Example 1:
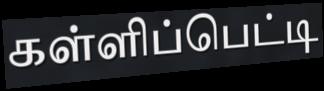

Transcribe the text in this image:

கள்ளிப்பெட்டி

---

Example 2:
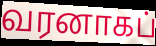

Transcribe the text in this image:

வரனாகப்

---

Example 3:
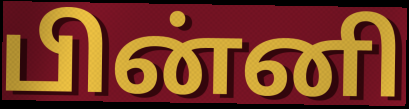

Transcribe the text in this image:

பின்னி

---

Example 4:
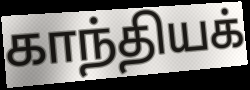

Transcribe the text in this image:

காந்தியக்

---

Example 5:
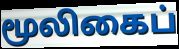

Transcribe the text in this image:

மூலிகைப்